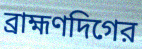
ব্রাহ্মণদিগের